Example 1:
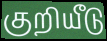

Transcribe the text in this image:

குறியீடு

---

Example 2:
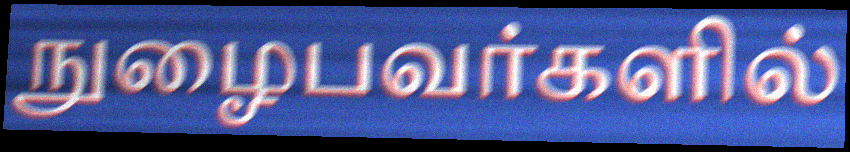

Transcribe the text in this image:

நுழைபவர்களில்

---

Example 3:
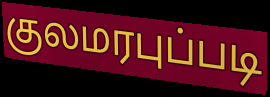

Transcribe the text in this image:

குலமரபுப்படி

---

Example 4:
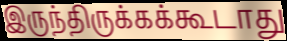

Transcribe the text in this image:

இருந்திருக்கக்கூடாது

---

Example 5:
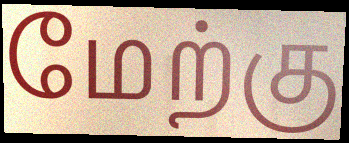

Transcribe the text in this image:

மேற்கு